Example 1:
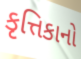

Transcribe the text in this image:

કૃત્તિકાનો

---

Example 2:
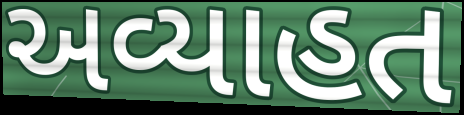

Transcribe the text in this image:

અવ્યાહત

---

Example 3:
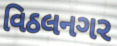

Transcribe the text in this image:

વિઠલનગર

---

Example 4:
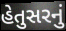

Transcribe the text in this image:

હેતુસરનું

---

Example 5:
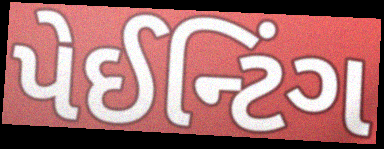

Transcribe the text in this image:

પેઈન્ટિંગ